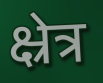
क्ष्रेत्र